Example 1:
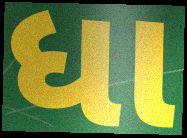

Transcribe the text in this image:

ધા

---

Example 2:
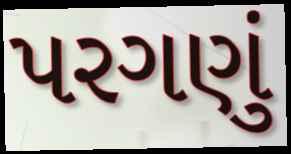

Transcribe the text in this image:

પરગણું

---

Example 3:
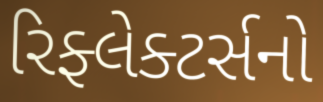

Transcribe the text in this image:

રિફ્લેક્ટર્સનો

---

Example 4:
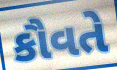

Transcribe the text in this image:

કૌવતે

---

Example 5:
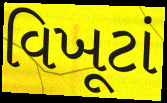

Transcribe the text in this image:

વિખૂટાં